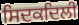
ਸਿਦਕਦਿਲੀ